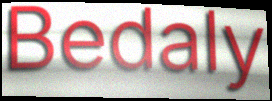
Bedaly